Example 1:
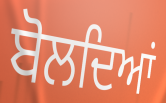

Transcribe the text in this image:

ਬੋਲਦਿਆਂ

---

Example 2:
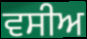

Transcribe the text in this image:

ਵਸੀਅ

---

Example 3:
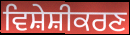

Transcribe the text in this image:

ਵਿਸ਼ੇਸ਼ੀਕਰਣ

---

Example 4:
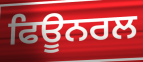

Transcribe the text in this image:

ਫਿਊਨਰਲ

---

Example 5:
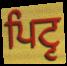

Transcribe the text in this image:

ਪਿਟ੍ਟ